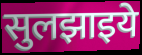
सुलझाइये